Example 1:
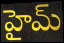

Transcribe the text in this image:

హైమ్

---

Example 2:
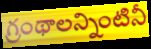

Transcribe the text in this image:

గ్రంథాలన్నింటినీ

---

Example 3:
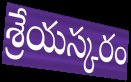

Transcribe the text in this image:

శ్రేయస్కరం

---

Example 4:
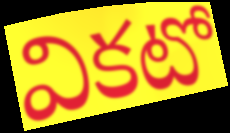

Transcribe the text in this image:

వికటో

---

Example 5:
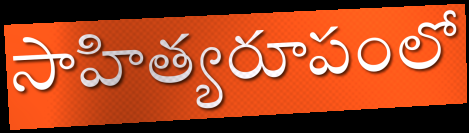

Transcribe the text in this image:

సాహిత్యరూపంలో